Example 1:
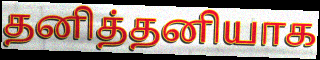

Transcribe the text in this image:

தனித்தனியாக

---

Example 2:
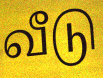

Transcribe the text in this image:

வீடு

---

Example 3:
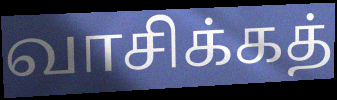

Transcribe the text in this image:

வாசிக்கத்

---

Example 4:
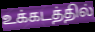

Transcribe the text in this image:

உக்கடத்தில்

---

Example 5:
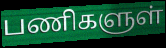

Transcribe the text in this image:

பணிகளுள்